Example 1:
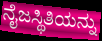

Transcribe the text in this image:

ನೈಜಸ್ಥಿತಿಯನ್ನು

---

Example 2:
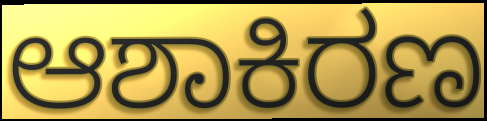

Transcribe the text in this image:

ಆಶಾಕಿರಣ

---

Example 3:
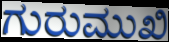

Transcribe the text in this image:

ಗುರುಮುಖಿ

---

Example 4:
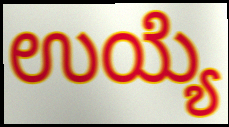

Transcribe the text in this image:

ಉಯ್ಯೆ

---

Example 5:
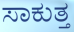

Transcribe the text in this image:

ಸಾಕುತ್ತ